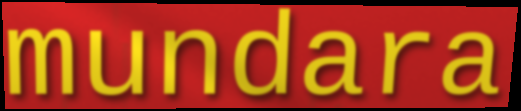
mundara